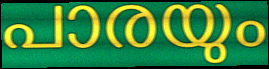
പാരയും